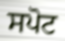
ਸਪੋਟ